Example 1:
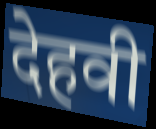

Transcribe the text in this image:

देहवी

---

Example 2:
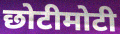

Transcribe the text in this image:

छोटीमोटी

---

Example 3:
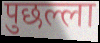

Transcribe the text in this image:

पुछल्ला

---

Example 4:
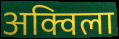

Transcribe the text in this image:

अक्विला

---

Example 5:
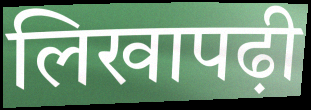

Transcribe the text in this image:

लिखापढ़ी